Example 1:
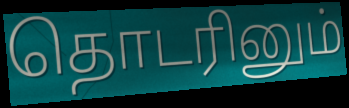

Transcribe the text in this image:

தொடரினும்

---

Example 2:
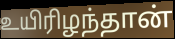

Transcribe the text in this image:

உயிரிழந்தான்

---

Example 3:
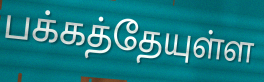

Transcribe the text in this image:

பக்கத்தேயுள்ள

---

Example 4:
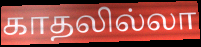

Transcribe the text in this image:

காதலில்லா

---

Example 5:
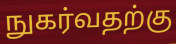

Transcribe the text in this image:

நுகர்வதற்கு